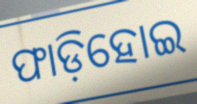
ଫାଡ଼ିହୋଇ